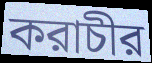
করাচীর